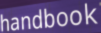
handbook